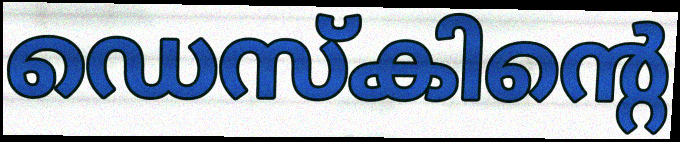
ഡെസ്കിന്റെ